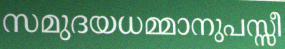
സമുദയധമ്മാനുപസ്സീ